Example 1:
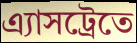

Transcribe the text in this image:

এ্যাসট্রেতে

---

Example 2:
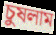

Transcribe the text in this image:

চুষলাম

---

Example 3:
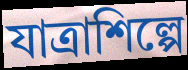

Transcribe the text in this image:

যাত্রাশিল্পে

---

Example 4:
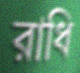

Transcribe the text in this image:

রাধি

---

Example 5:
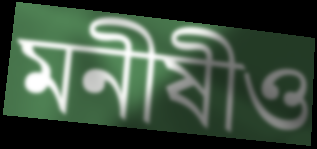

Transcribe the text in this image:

মনীষীও